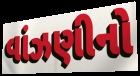
વાંઝણીનો